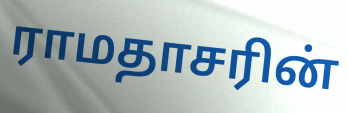
ராமதாசரின்